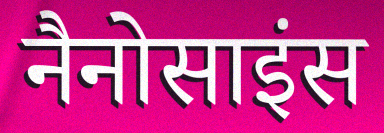
नैनोसाइंस